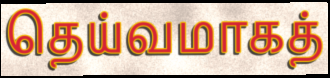
தெய்வமாகத்